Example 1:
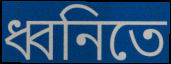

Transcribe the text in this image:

ধ্বনিতে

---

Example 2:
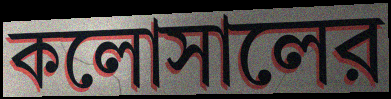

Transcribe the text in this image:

কলোসালের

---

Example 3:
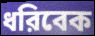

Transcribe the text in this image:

ধরিবেক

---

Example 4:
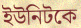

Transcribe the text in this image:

ইউনিটকে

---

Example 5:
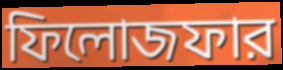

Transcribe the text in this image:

ফিলোজফার